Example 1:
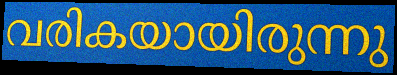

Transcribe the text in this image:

വരികയായിരുന്നു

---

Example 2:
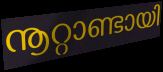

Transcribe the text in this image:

നൂറ്റാണ്ടായി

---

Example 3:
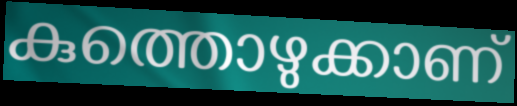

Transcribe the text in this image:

കുത്തൊഴുക്കാണ്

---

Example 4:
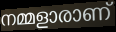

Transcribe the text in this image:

നമ്മളാരാണ്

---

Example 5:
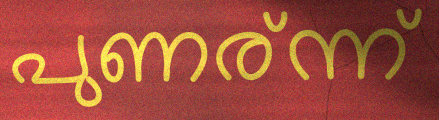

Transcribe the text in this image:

പുണര്ന്ന്